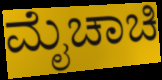
ಮೈಚಾಚಿ